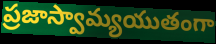
ప్రజాస్వామ్యయుతంగా